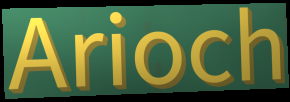
Arioch